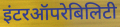
इंटरऑपरेबिलिटी